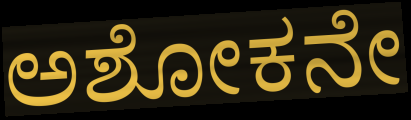
ಅಶೋಕನೇ